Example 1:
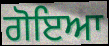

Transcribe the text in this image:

ਗੋਇਆ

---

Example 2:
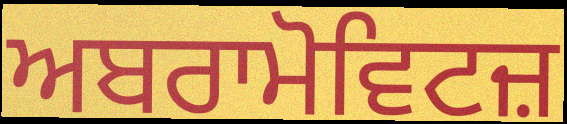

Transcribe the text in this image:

ਅਬਰਾਮੋਵਿਟਜ਼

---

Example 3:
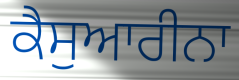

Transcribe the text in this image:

ਕੈਸੁਆਰੀਨਾ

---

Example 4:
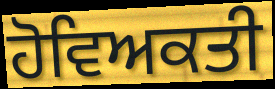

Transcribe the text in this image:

ਹੋਵਿਅਕਤੀ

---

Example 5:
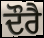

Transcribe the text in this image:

ਦੌਰੈ